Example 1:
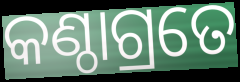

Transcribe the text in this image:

କଣ୍ଠାଗ୍ରତେ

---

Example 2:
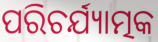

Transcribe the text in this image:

ପରିଚର୍ଯ୍ୟାତ୍ମକ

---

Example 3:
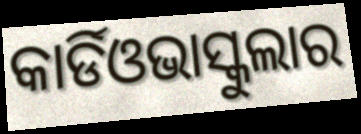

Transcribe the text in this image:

କାର୍ଡିଓଭାସ୍କୁଲାର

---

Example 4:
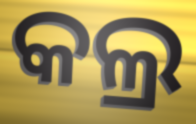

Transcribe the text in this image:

କଲ୍ର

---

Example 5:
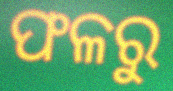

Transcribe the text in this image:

ଫଳରୁ